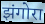
झंगोरा